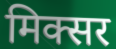
मिक्सर